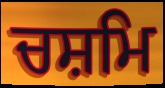
ਚਸ਼ਮਿ